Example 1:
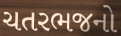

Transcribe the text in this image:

ચતરભજનો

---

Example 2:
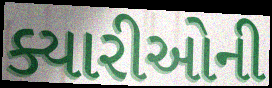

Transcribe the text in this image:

ક્યારીઓની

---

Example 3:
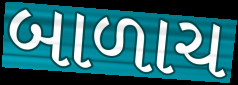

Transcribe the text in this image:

બાળાચ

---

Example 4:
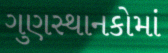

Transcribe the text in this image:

ગુણસ્થાનકોમાં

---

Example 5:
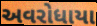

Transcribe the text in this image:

અવરોધાયા